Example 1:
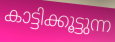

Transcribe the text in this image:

കാട്ടിക്കൂട്ടുന്ന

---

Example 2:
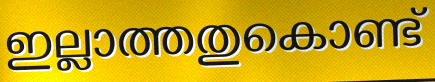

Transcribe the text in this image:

ഇല്ലാത്തതുകൊണ്ട്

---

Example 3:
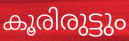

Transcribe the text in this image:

കൂരിരുട്ടും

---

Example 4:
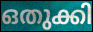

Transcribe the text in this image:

ഒതുക്കി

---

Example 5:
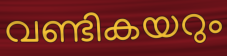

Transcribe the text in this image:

വണ്ടികയറും